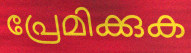
പ്രേമിക്കുക